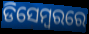
ଡିସେମ୍ବରରେ